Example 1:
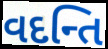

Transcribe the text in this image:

વદન્તિ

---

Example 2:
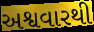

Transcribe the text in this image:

અશ્વવારથી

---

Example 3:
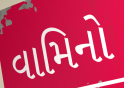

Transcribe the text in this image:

વામિનો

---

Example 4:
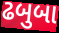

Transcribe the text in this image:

ઢબુબા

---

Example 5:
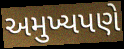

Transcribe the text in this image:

અમુખ્યપણે